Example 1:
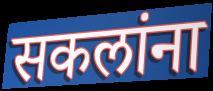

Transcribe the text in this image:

सकलांना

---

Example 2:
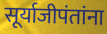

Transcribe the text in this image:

सूर्याजीपंतांना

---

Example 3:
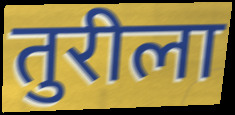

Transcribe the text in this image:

तुरीला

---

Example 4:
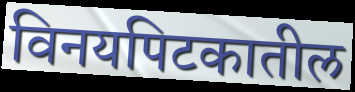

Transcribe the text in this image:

विनयपिटकातील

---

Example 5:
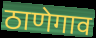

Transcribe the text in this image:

ठाणेगाव